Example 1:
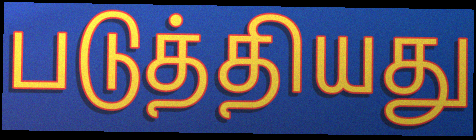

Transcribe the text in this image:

படுத்தியது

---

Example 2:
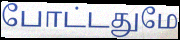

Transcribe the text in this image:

போட்டதுமே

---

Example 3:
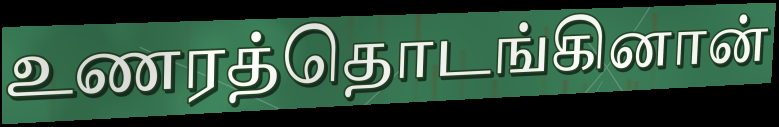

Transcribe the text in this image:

உணரத்தொடங்கினான்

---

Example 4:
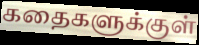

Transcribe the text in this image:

கதைகளுக்குள்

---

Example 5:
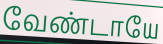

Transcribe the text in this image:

வேண்டாயே